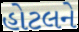
હોટલને